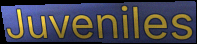
Juveniles